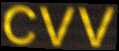
cvv